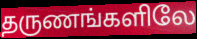
தருணங்களிலே